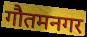
गौतमनगर